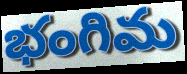
భంగిమ